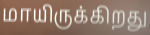
மாயிருக்கிறது